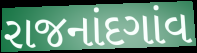
રાજનાંદગાંવ